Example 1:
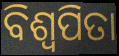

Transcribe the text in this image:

ବିଶ୍ଵପିତା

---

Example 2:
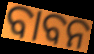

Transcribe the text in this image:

ବାବନ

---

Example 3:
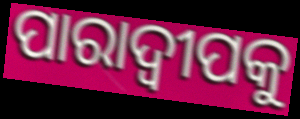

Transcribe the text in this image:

ପାରାଦ୍ୱୀପକୁ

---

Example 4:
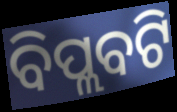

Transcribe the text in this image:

ବିପ୍ଲବଟି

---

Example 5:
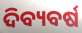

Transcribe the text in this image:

ଦିବ୍ୟବର୍ଷ